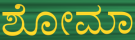
ಶೋಮಾ